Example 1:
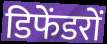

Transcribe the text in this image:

डिफेंडरों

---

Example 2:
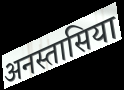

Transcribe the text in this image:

अनस्तासिया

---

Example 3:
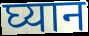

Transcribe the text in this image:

घ्यान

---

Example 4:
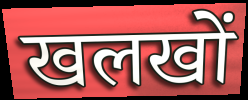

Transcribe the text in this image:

खलखों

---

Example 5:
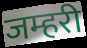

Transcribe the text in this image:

जम्हरी